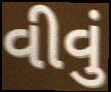
વીવું